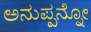
ಅನುಪ್ಪನ್ನೋ